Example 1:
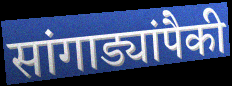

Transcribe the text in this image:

सांगाड्यांपैकी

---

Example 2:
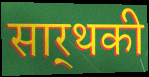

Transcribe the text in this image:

सार्थकी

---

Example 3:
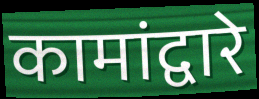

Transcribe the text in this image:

कामांद्वारे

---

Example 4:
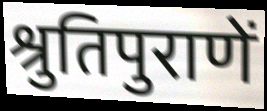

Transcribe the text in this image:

श्रुतिपुराणें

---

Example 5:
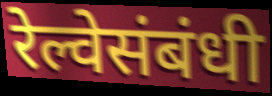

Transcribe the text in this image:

रेल्वेसंबंधी